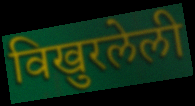
विखुरलेली